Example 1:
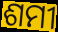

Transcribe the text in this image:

ଶମୀ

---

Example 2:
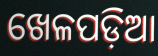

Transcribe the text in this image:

ଖେଳପଡ଼ିଆ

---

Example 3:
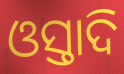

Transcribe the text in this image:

ଓସ୍ତାଦି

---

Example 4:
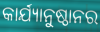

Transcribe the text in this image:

କାର୍ଯ୍ୟାନୁଷ୍ଠାନର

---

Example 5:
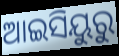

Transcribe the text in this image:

ଆଇସିୟୁରୁ